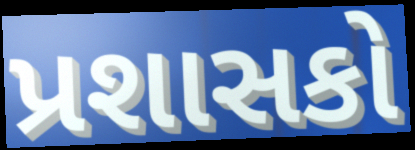
પ્રશાસકો